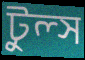
টুল্স